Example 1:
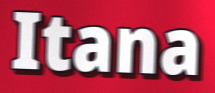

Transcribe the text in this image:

Itana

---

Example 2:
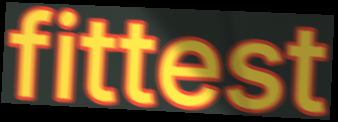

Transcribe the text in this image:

fittest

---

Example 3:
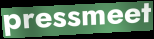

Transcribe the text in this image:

pressmeet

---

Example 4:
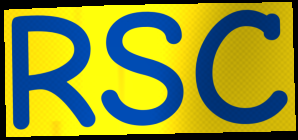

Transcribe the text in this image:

RSC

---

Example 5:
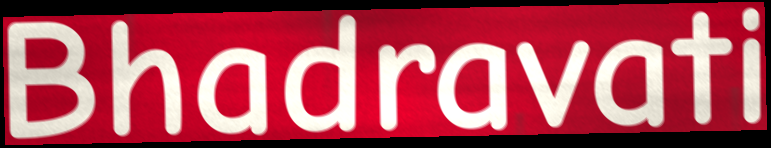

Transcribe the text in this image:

Bhadravati